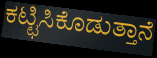
ಕಟ್ಟಿಸಿಕೊಡುತ್ತಾನೆ